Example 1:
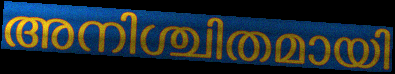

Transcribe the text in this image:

അനിശ്ചിതമായി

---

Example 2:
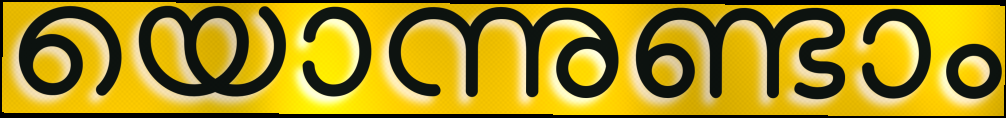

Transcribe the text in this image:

യൊന്നുണ്ടാം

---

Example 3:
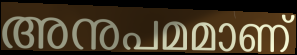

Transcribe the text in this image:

അനുപമമാണ്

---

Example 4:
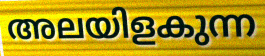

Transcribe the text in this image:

അലയിളകുന്ന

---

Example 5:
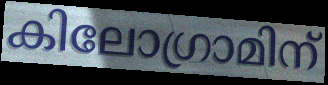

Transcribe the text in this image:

കിലോഗ്രാമിന്